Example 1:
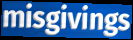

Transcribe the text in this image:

misgivings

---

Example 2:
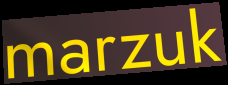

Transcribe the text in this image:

marzuk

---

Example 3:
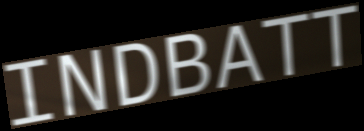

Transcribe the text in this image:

INDBATT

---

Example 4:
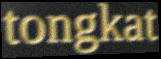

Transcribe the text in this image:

tongkat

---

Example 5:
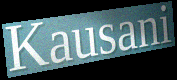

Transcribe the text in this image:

Kausani